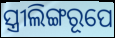
ସ୍ତ୍ରୀଲିଙ୍ଗରୂପେ